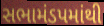
સભામંડપમાંથી